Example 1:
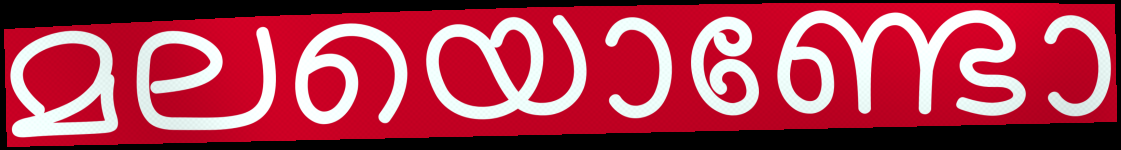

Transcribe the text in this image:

മലയൊണ്ടോ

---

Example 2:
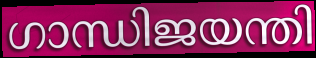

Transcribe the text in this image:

ഗാന്ധിജയന്തി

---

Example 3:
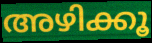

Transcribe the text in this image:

അഴിക്കൂ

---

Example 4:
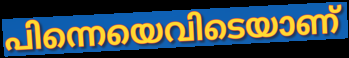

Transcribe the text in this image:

പിന്നെയെവിടെയാണ്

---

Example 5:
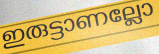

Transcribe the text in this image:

ഇരുട്ടാണല്ലോ